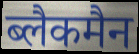
ब्लैकमैन